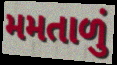
મમતાળું